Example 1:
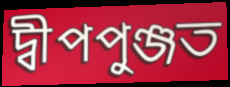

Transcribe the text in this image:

দ্বীপপুঞ্জত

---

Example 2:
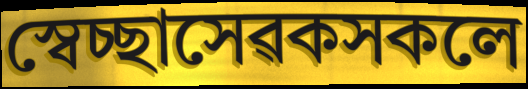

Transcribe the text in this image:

স্বেচ্ছাসেৱকসকলে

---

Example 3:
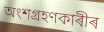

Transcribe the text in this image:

অংশগ্ৰহণকাৰীৰ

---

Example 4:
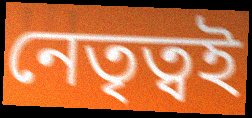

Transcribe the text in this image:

নেতৃত্বই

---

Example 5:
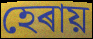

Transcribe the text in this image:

হেৰায়